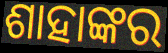
ଶାହାଙ୍କର